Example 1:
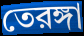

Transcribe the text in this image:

তেরঙ্গা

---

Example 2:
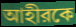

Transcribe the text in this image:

আহীরকে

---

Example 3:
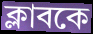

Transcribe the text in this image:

ক্লাবকে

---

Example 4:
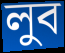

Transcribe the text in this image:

লুব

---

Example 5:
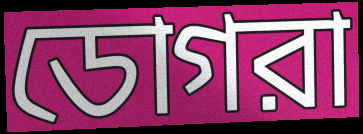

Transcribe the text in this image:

ডোগরা